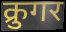
क्रुगर